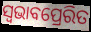
ସ୍ୱଭାବପ୍ରେରିତ